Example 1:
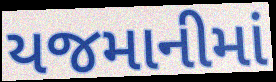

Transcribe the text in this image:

યજમાનીમાં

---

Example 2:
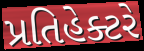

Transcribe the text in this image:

પ્રતિહેક્ટરે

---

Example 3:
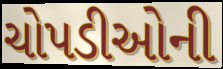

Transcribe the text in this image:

ચોપડીઓની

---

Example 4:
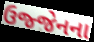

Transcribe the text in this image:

ઉજ્જેનના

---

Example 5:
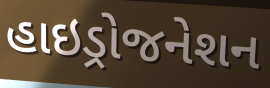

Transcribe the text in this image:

હાઇડ્રોજનેશન